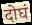
दोघं